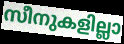
സീനുകളില്ലാ